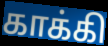
காக்கி